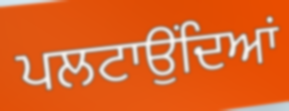
ਪਲਟਾਉਂਦਿਆਂ